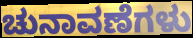
ಚುನಾವಣೆಗಳು